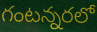
గంటన్నరలో